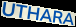
UTHARA